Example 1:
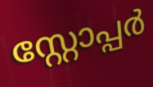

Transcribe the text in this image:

സ്റ്റോപ്പർ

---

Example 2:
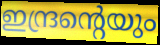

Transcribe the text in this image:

ഇന്ദ്രന്റെയും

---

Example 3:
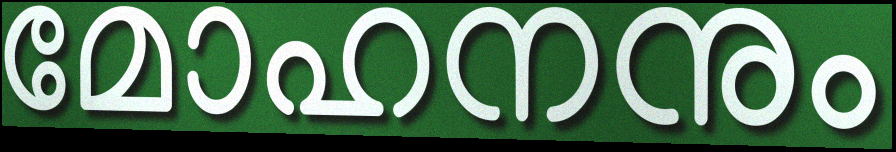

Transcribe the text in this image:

മോഹനനും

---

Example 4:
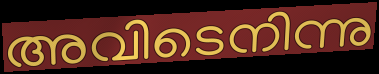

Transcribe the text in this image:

അവിടെനിന്നു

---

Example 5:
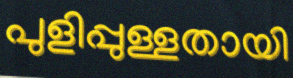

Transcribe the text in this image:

പുളിപ്പുള്ളതായി